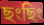
ছংছিং